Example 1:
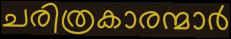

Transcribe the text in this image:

ചരിത്രകാരന്മാർ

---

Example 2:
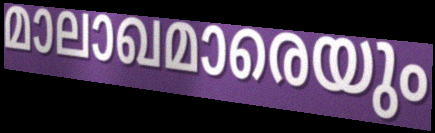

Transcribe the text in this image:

മാലാഖമാരെയും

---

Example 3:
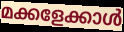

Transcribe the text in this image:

മക്കളേക്കാൾ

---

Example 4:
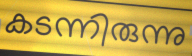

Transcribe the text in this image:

കടന്നിരുന്നു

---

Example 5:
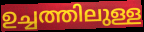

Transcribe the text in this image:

ഉച്ചത്തിലുള്ള